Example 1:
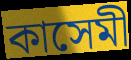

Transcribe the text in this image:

কাসেমী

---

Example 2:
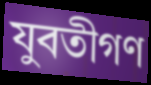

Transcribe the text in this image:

যুবতীগণ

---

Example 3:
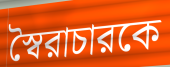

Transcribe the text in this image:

স্বৈরাচারকে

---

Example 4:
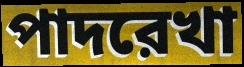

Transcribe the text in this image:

পাদরেখা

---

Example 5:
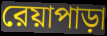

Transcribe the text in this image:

রেয়াপাড়া